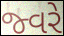
જ્વરે